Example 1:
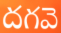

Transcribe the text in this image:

దగవె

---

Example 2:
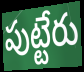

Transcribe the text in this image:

పుట్టేరు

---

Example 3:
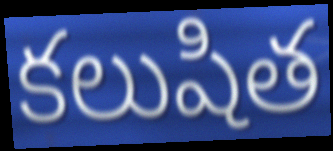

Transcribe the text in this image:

కలుషిత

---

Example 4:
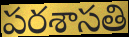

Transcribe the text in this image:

పరశాసతి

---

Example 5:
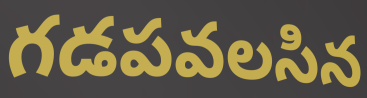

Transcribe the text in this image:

గడపవలసిన